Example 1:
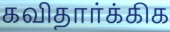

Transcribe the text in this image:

கவிதார்க்கிக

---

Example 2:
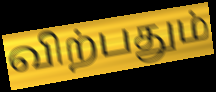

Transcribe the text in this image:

விற்பதும்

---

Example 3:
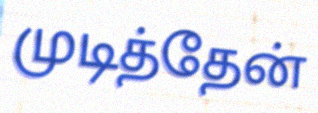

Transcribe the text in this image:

முடித்தேன்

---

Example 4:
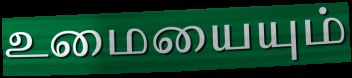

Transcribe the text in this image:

உமையையும்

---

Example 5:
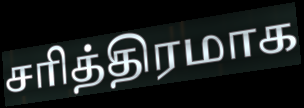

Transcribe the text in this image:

சரித்திரமாக